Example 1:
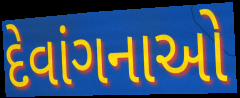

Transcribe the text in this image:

દેવાંગનાઓ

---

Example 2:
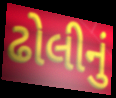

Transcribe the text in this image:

ઢોલીનું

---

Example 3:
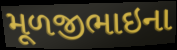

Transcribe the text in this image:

મૂળજીભાઇના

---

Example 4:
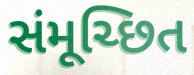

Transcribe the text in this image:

સંમૂચ્છિત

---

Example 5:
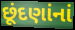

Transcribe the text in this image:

છૂંદણાંનાં